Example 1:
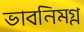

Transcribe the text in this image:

ভাবনিমগ্ন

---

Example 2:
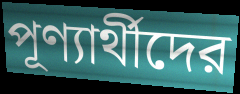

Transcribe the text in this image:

পূণ্যার্থীদের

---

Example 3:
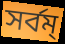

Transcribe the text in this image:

সর্বম্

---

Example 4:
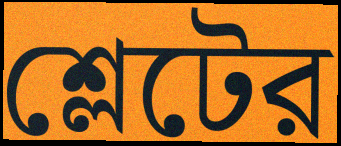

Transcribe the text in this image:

শ্লেটের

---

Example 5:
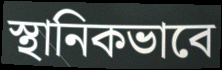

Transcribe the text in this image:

স্থানিকভাবে